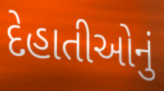
દેહાતીઓનું